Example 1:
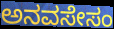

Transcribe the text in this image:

ಅನವಸೇಸಂ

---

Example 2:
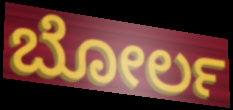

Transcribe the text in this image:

ಬೋರ್ಲ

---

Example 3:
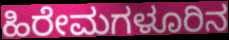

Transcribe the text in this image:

ಹಿರೇಮಗಳೂರಿನ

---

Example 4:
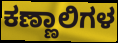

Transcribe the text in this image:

ಕಣ್ಣಾಲಿಗಳ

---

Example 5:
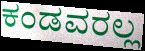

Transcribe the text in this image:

ಕಂಡವರಲ್ಲ